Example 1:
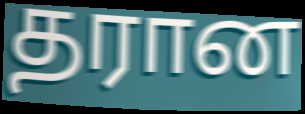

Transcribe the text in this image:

தரான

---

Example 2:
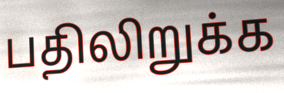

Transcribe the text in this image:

பதிலிறுக்க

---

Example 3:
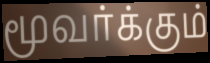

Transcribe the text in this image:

மூவர்க்கும்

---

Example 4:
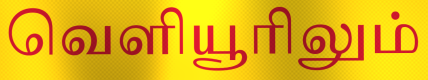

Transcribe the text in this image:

வெளியூரிலும்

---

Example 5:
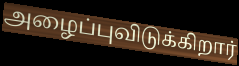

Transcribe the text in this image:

அழைப்புவிடுக்கிறார்